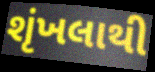
શૃંખલાથી